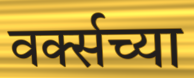
वर्क्‍सच्या